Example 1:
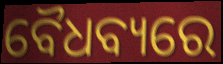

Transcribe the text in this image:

ବୈଧବ୍ୟରେ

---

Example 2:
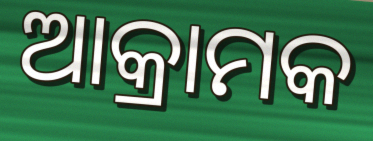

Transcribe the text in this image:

ଆକ୍ରାମକ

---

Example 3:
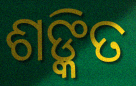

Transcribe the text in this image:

ଶଙ୍କିତ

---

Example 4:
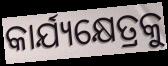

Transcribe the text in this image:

କାର୍ଯ୍ୟକ୍ଷେତ୍ରକୁ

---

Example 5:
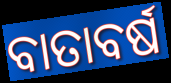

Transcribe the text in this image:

ବାତାବର୍ଷ